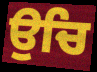
ਉਚਿ